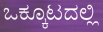
ಒಕ್ಕೂಟದಲ್ಲಿ